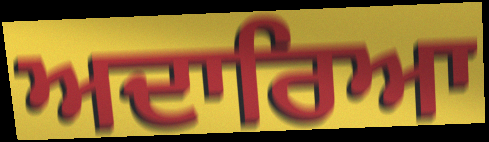
ਅਦਾਰਿਆ